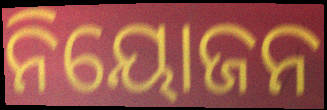
ନିୟୋଜନ